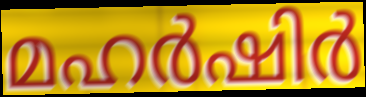
മഹർഷിർ